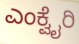
ಎಂಕ್ವೈರಿ